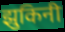
झुकिनी